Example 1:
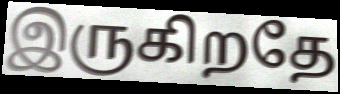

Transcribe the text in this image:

இருகிறதே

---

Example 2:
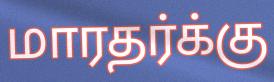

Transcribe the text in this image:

மாரதர்க்கு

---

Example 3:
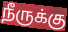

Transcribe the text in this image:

நீருக்கு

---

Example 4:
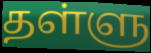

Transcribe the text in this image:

தள்ளு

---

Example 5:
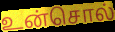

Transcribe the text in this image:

உன்சொல்